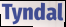
Tyndal